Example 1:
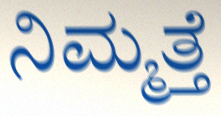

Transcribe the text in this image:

ನಿಮ್ಮತ್ತೆ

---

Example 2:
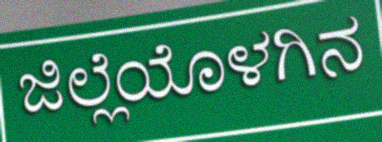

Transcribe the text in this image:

ಜಿಲ್ಲೆಯೊಳಗಿನ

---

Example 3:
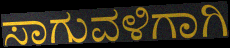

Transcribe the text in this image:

ಸಾಗುವಳಿಗಾಗಿ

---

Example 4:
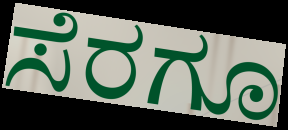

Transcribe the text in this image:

ಸೆರಗೂ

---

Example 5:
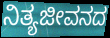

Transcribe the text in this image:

ನಿತ್ಯಜೀವನದ